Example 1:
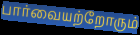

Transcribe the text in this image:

பார்வையற்றோரும்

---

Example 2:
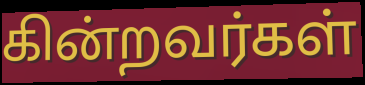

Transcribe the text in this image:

கின்றவர்கள்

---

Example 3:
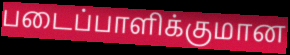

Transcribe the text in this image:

படைப்பாளிக்குமான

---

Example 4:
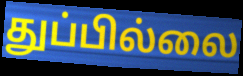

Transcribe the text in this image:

துப்பில்லை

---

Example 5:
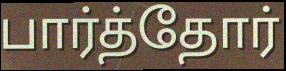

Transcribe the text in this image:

பார்த்தோர்